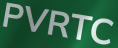
PVRTC